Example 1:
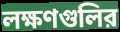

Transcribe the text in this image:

লক্ষণগুলির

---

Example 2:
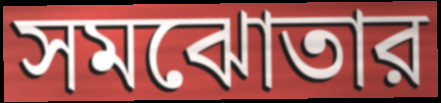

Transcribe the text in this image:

সমঝোতার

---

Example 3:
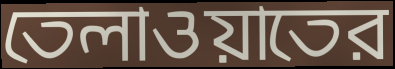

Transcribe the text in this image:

তেলাওয়াতের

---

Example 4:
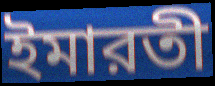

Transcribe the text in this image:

ইমারতী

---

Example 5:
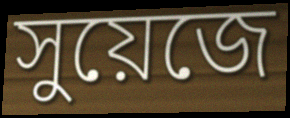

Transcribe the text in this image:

সুয়েজে